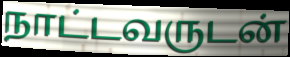
நாட்டவருடன்